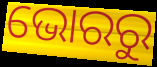
ଭୋରରୁ